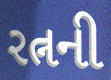
રત્નની